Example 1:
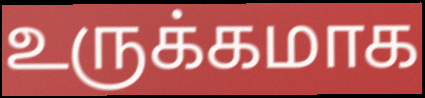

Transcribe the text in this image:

உருக்கமாக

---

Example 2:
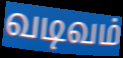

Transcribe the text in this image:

வடிவம்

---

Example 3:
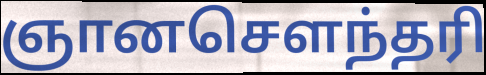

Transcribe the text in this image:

ஞானசெளந்தரி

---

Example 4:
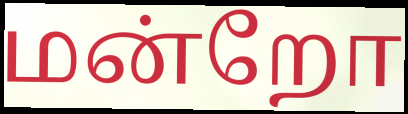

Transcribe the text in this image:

மன்றோ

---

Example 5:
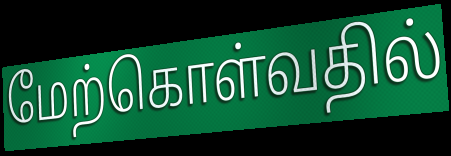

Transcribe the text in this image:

மேற்கொள்வதில்